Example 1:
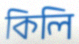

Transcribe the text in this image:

কিলি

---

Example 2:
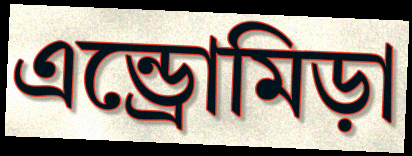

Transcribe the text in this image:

এন্ড্রোমিড়া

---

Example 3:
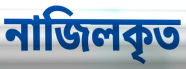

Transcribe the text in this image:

নাজিলকৃত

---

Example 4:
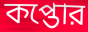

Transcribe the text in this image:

কপ্তোর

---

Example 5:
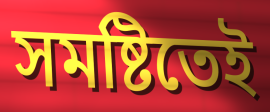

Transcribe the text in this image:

সমষ্টিতেই